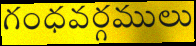
గంధవర్గములు